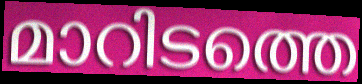
മാറിടത്തെ